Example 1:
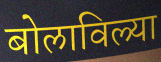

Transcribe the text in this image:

बोलाविल्या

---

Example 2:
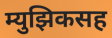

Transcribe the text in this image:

म्युझिकसह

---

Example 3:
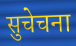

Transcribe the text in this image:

सुचेचना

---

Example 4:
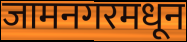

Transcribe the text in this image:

जामनगरमधून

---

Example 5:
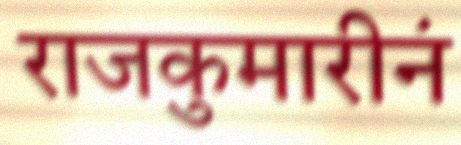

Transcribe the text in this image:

राजकुमारीनं